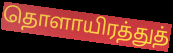
தொளாயிரத்துத்